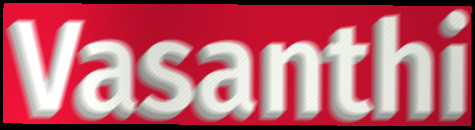
Vasanthi